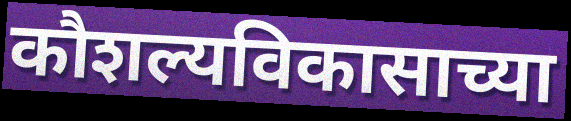
कौशल्यविकासाच्या